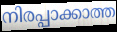
നിരപ്പാക്കാത്ത